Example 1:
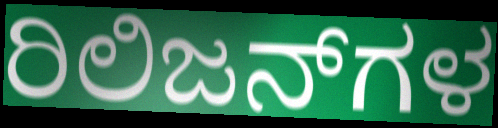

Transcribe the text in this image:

ರಿಲಿಜನ್‌ಗಳ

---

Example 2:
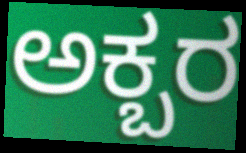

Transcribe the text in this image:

ಅಕ್ಬರ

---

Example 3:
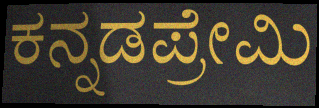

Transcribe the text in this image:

ಕನ್ನಡಪ್ರೇಮಿ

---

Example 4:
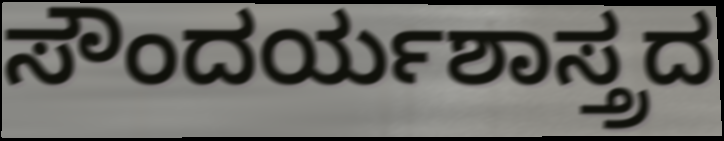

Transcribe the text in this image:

ಸೌಂದರ್ಯಶಾಸ್ತ್ರದ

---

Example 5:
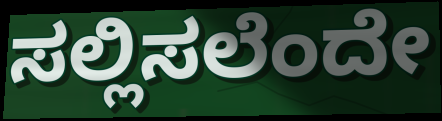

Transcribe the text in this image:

ಸಲ್ಲಿಸಲೆಂದೇ